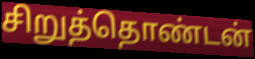
சிறுத்தொண்டன்